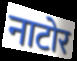
नाटोर